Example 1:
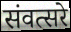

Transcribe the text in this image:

संवत्सरे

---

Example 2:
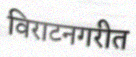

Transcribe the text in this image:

विराटनगरीत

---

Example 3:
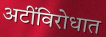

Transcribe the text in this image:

अटींविरोधात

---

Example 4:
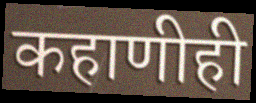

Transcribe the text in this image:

कहाणीही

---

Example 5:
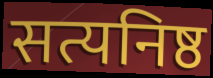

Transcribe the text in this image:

सत्यनिष्ठ